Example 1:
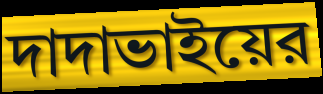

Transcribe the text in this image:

দাদাভাইয়ের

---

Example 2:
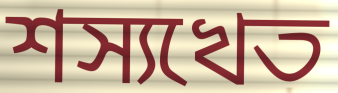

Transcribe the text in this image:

শস্যখেত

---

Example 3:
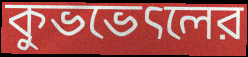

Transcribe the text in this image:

কুভভেৎলের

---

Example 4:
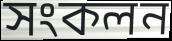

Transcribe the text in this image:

সংকলন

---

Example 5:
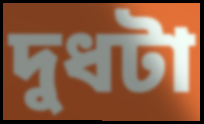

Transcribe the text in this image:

দুধটা